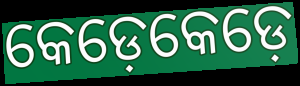
କେଡ଼େକେଡ଼େ